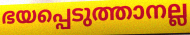
ഭയപ്പെടുത്താനല്ല